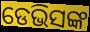
ଡେଭିସଙ୍କ